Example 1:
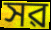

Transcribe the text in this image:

সৱ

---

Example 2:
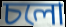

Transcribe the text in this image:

চলো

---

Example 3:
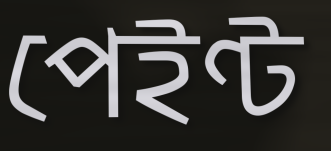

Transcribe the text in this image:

পেইণ্ট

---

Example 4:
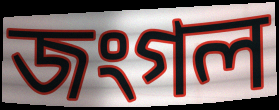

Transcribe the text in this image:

জংগল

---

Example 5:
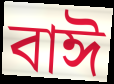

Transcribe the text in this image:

বাঈ